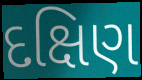
દક્ષિણ